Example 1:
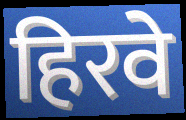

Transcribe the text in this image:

हिरवे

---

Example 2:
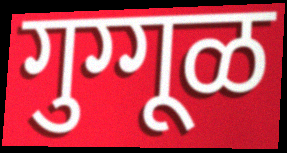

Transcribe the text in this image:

गुग्गूळ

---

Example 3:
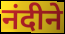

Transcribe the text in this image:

नंदीने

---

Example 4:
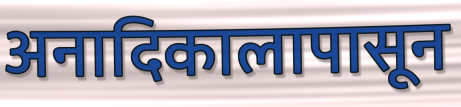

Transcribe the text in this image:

अनादिकालापासून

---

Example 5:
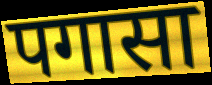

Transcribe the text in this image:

पगासा